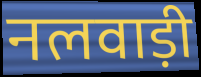
नलवाड़ी